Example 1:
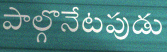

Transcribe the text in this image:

పాల్గొనేటపుడు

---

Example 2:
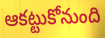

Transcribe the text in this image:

ఆకట్టుకోనుంది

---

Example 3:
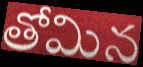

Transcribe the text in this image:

తోమిన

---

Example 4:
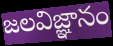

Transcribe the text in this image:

జలవిజ్ఞానం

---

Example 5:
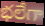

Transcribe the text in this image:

భలేగా